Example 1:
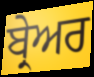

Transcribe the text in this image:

ਬ੍ਰੇਅਰ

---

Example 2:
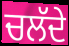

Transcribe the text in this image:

ਚਲੱਦੇ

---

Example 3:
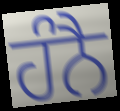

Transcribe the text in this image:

ਹੰਨੈ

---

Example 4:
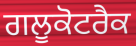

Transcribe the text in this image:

ਗਲੂਕੋਟਰੈਕ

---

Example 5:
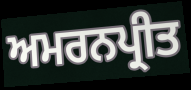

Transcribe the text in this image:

ਅਮਰਨਪ੍ਰੀਤ